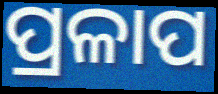
ପ୍ରଳାପ